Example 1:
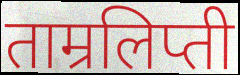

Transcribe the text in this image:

ताम्रलिप्ती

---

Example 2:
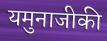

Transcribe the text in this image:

यमुनाजीकी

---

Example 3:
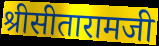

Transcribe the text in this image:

श्रीसीतारामजी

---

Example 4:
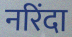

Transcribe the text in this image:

नरिंदा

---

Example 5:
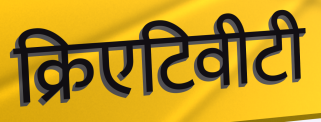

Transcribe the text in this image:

क्रिएटिवीटी